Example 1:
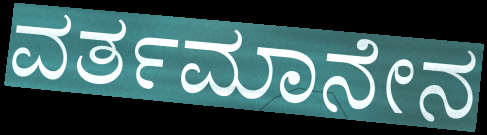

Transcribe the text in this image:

ವರ್ತಮಾನೇನ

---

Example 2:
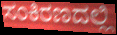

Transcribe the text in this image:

ಸಂಕಿರಣದಲ್ಲಿ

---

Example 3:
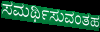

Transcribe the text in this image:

ಸಮರ್ಥಿಸುವಂತಹ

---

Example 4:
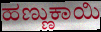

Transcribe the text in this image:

ಹಣ್ಣುಕಾಯಿ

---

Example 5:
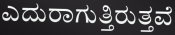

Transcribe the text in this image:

ಎದುರಾಗುತ್ತಿರುತ್ತವೆ